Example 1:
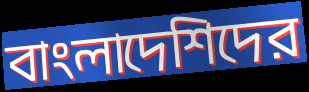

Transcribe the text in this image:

বাংলাদেশিদের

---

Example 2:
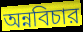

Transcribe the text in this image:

অন্নবিচার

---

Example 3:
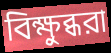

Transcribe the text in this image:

বিক্ষুব্ধরা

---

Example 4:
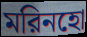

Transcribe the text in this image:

মরিনহো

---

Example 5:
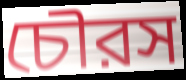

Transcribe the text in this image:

চৌরস